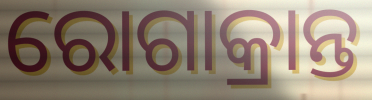
ରୋଗାକ୍ରାନ୍ତ